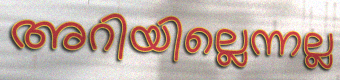
അറിയില്ലെന്നല്ല